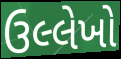
ઉલ્લેખો